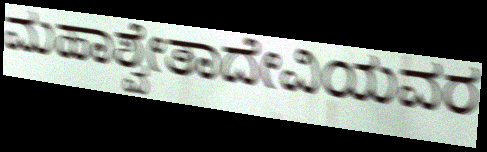
ಮಹಾಶ್ವೇತಾದೇವಿಯವರ